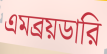
এমব্রয়ডারি